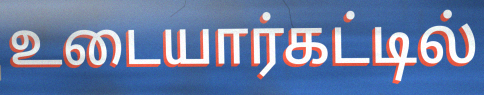
உடையார்கட்டில்